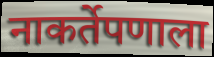
नाकर्तेपणाला